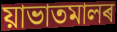
য়াভাতমালৰ